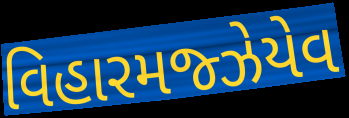
વિહારમજ્ઝેયેવ